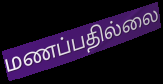
மணப்பதில்லை